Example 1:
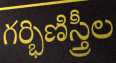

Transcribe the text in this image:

గర్భిణిస్త్రీల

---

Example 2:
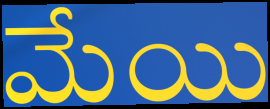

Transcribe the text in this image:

మేయి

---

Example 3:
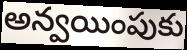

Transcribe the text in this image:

అన్వయింపుకు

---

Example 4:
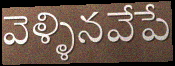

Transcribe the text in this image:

వెళ్ళినవేపే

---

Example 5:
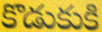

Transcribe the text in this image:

కొడుకుకి